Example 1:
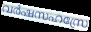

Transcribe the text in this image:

വർഷസഹസ്രേ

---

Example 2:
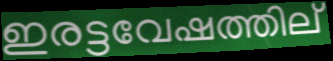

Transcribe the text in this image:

ഇരട്ടവേഷത്തില്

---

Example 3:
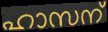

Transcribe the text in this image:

ഹാസന്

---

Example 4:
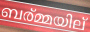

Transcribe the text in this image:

ബര്മ്മയില്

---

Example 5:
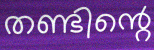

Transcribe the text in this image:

തണ്ടിന്റെ